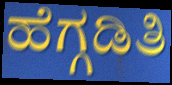
ಹೆಗ್ಗಡಿತಿ